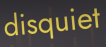
disquiet